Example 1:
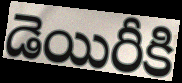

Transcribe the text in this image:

డెయిరీకి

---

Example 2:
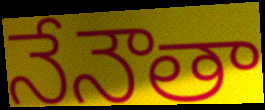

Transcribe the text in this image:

నేనౌతా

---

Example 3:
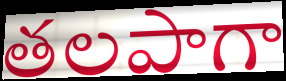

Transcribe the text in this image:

తలపాగా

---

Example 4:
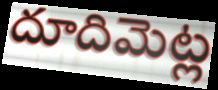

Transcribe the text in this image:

దూదిమెట్ల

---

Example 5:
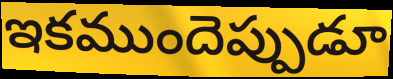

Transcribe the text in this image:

ఇకముందెప్పుడూ